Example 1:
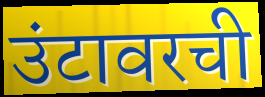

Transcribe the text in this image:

उंटावरची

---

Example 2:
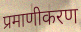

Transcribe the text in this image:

प्रमाणीकरण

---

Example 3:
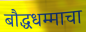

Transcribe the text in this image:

बौद्धधम्माचा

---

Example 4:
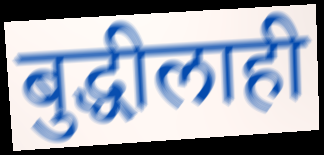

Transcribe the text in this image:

बुद्धीलाही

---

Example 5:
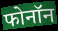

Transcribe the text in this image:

फोनॉन